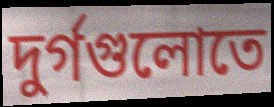
দুর্গগুলোতে